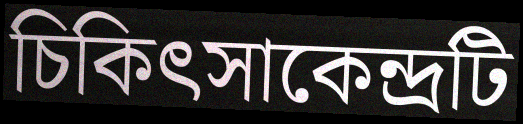
চিকিৎসাকেন্দ্রটি